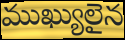
ముఖ్యులైన